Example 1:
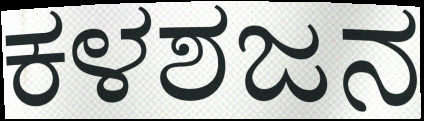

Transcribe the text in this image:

ಕಳಶಜನ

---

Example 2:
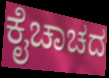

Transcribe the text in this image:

ಕೈಚಾಚದ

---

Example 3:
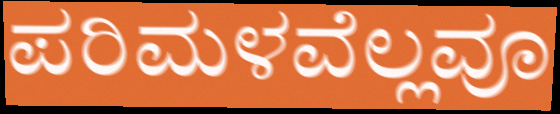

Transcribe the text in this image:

ಪರಿಮಳವೆಲ್ಲವೂ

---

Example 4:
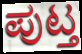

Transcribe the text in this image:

ಪುಟ್ತ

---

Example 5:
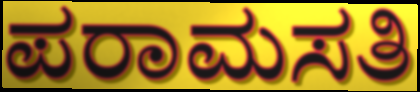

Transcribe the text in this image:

ಪರಾಮಸತಿ